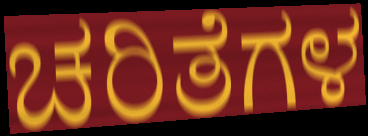
ಚರಿತೆಗಳ